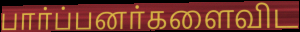
பார்ப்பனர்களைவிட